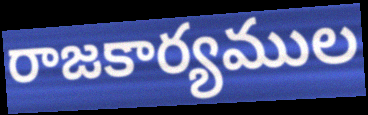
రాజకార్యముల